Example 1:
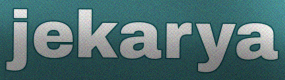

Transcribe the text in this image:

jekarya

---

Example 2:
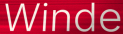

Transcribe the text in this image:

Winde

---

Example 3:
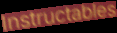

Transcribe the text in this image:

Instructables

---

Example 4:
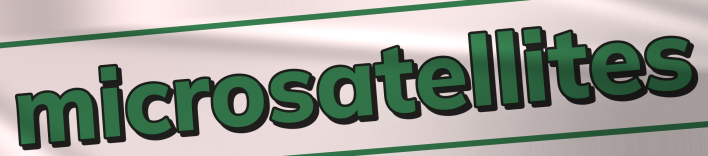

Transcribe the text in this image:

microsatellites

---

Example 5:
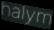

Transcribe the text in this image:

halym